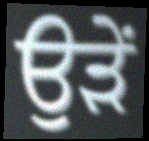
ਉੜੇਂ